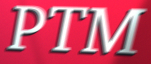
PTM